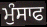
ਮੁੰਸਾਫ